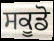
ਸਕੂਡੋ